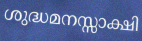
ശുദ്ധമനസ്സാക്ഷി